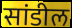
सांडील